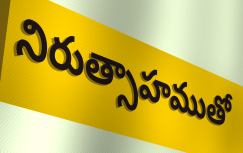
నిరుత్సాహముతో